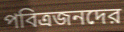
পবিত্রজনদের